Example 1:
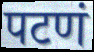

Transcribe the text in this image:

पटणं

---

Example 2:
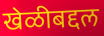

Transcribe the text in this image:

खेळीबद्दल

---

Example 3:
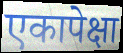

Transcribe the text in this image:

एकापेक्षा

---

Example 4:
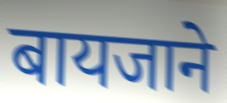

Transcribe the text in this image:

बायजाने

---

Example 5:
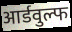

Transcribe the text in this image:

आर्डवुल्फ